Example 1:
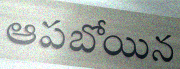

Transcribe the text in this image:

ఆపబోయిన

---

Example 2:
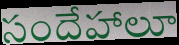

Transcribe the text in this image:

సందేహాలూ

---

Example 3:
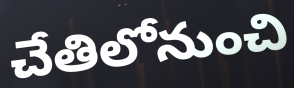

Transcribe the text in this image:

చేతిలోనుంచి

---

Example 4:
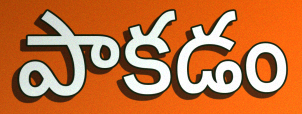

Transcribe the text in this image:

పాకడం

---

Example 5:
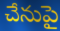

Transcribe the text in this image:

చేనుపై